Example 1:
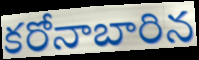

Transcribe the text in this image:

కరోనాబారిన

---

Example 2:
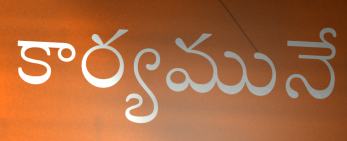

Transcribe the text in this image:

కార్యమునే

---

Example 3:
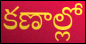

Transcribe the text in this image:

కణాల్లో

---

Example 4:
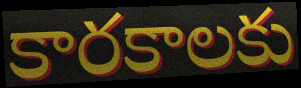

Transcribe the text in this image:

కారకాలకు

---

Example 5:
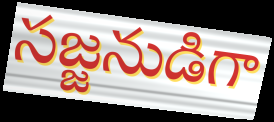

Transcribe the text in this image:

సజ్జనుడిగా